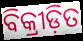
ବିକ୍ରୀଡ଼ିତ